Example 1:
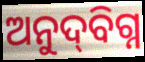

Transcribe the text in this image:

ଅନୁଦ୍‌ବିଗ୍ନ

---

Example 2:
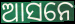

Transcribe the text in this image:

ଆସନେ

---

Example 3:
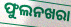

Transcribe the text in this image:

ଫୁଲନଖରା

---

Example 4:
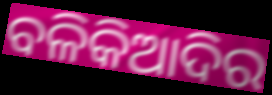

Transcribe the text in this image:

ବଳିକିଆଦିର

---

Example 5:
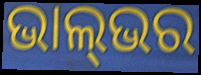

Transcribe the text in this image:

ଭାଲ୍‌ଭର